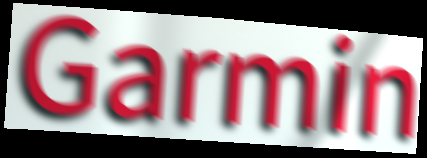
Garmin